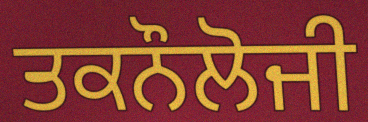
ਤਕਨੌਲੋਜੀ